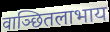
वाञ्छितलाभाय